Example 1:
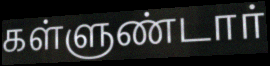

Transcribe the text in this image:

கள்ளுண்டார்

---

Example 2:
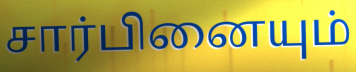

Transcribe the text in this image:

சார்பினையும்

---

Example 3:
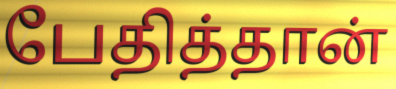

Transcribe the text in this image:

பேதித்தான்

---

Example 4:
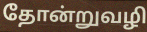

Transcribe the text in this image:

தோன்றுவழி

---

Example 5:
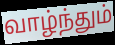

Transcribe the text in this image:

வாழ்ந்தும்